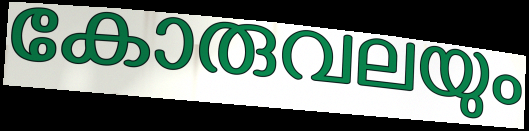
കോരുവലയും